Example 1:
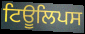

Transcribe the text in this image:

ਟਿਊਲਿਪਸ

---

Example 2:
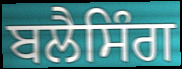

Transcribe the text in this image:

ਬਲੈਸਿੰਗ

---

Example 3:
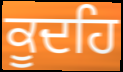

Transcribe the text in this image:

ਕੂਦਹਿ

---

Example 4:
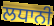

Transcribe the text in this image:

ਲਧਾਨੀ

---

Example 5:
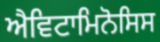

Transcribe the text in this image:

ਐਵਿਟਾਮਿਨੋਸਿਸ